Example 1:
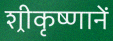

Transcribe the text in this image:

श्रीकृष्णानें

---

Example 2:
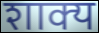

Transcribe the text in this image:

शाक्य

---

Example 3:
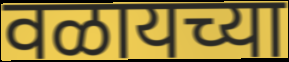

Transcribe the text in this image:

वळायच्या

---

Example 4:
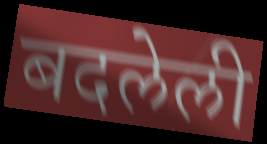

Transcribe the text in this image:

बदलेली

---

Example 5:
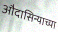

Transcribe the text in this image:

औदासिन्याच्या